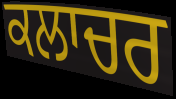
ਕਲਾਚਰ